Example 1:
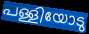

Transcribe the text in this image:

പള്ളിയോടു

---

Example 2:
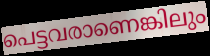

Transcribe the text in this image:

പെട്ടവരാണെങ്കിലും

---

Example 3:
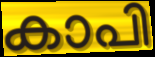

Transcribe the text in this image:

കാപി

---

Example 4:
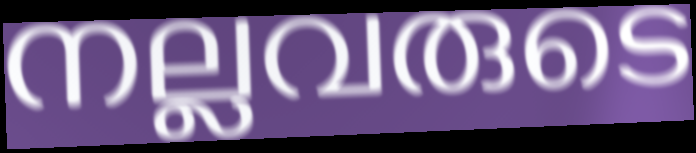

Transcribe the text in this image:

നല്ലവരുടെ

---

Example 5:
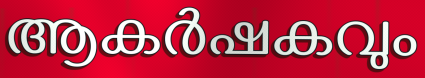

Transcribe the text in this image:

ആകർഷകവും